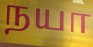
நயா